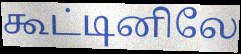
கூட்டினிலே